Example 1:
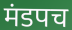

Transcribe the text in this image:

मंडपच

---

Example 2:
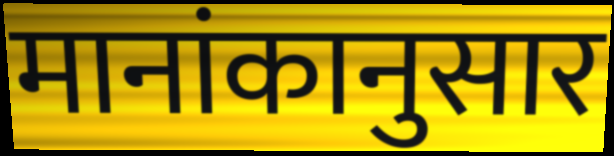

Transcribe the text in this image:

मानांकानुसार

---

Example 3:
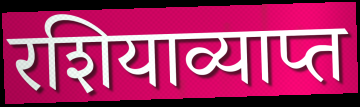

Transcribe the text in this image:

रशियाव्याप्त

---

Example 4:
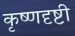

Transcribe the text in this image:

कृष्णदृष्टी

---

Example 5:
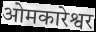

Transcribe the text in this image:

ओमकारेश्वर